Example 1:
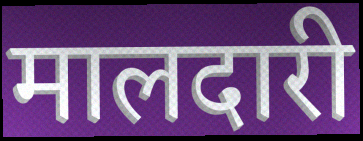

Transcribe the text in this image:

मालदारी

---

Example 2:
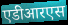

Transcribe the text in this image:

एडीआरएस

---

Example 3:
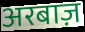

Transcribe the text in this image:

अरबाज़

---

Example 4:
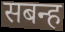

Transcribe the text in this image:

सबन्ह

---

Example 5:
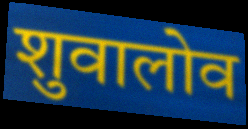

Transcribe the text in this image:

शुवालोव